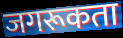
जगरूकता